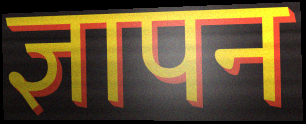
ज्ञापन